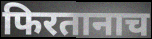
फिरतानाच